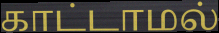
காட்டாமல்